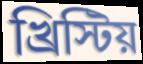
খ্রিস্টিয়